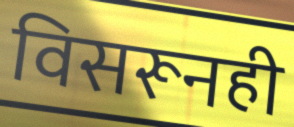
विसरूनही